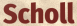
Scholl